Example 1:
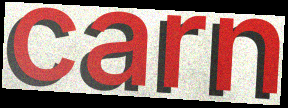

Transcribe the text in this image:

carn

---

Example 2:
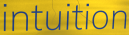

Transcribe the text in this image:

intuition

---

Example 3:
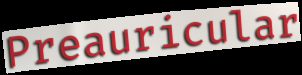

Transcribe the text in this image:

Preauricular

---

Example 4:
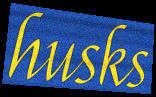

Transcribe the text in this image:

husks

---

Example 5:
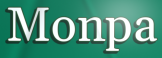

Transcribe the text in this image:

Monpa